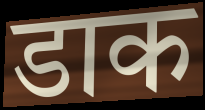
डाक